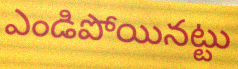
ఎండిపోయినట్టు